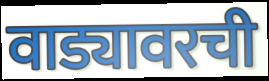
वाड्यावरची